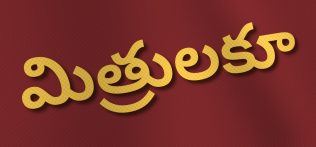
మిత్రులకూ